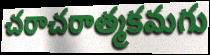
చరాచరాత్మకమగు